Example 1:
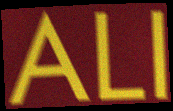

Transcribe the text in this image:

ALI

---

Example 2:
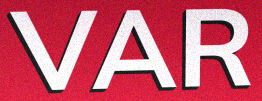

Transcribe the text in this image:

VAR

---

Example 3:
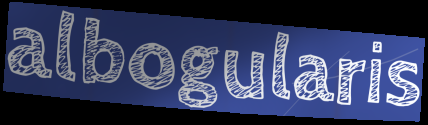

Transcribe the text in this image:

albogularis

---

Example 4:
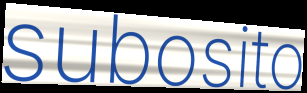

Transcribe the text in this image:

subosito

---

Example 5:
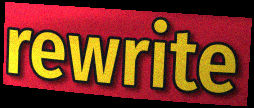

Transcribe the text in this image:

rewrite